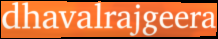
dhavalrajgeera